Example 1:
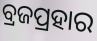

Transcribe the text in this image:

ବ୍ରଜପ୍ରହାର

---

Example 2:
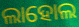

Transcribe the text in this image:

ଲାହୋଲ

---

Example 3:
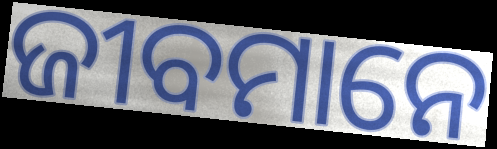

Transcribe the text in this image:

ଜୀବମାନେ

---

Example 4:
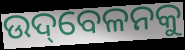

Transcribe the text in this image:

ଉଦ୍‌ବେଳନକୁ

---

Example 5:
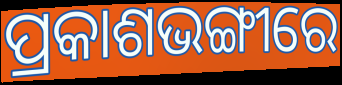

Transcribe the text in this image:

ପ୍ରକାଶଭଙ୍ଗୀରେ